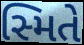
સ્મિતે